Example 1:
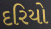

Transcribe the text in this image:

દરિયો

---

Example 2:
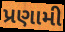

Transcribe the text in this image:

પ્રણામી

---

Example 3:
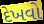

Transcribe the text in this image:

દેખવો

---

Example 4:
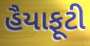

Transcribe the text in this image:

હૈયાફૂટી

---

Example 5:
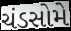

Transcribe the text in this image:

ચંડસોમે